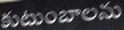
కుటుంబాలను